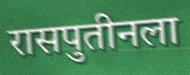
रासपुतीनला